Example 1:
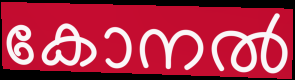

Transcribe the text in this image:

കോനൽ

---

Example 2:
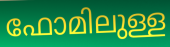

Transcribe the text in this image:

ഫോമിലുള്ള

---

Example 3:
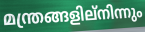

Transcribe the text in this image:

മന്ത്രങ്ങളില്നിന്നും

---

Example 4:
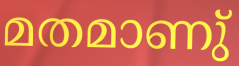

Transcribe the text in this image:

മതമാണു്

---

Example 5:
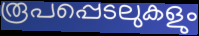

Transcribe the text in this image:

രൂപപ്പെടലുകളും